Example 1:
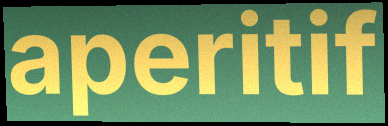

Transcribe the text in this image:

aperitif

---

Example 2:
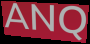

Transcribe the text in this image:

ANQ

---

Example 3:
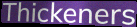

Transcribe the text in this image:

Thickeners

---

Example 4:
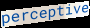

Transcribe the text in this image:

perceptive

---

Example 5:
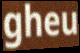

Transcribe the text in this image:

gheu